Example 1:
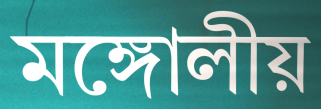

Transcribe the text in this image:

মঙ্গোলীয়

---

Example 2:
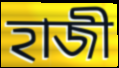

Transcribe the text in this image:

হাজী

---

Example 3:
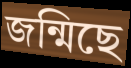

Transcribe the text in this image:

জন্মিছে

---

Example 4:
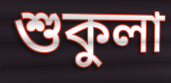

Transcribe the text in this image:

শুকুলা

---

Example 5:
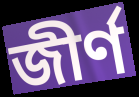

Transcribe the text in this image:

জীৰ্ণ